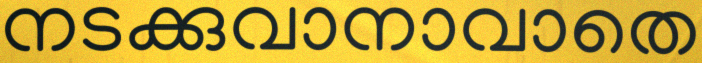
നടക്കുവാനാവാതെ